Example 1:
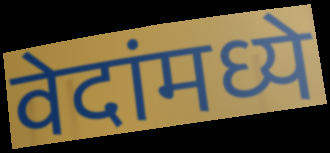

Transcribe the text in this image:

वेदांमध्ये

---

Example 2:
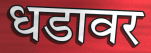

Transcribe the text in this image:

धडावर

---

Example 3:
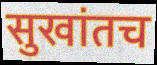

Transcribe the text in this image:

सुखांतच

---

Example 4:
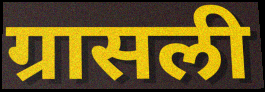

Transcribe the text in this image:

ग्रासली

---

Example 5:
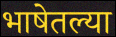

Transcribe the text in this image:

भाषेतल्या